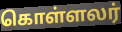
கொள்ளலர்